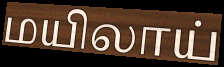
மயிலாய்